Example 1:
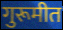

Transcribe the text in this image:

गुरूमीत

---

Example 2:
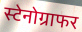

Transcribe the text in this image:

स्टेनोग्राफर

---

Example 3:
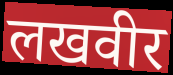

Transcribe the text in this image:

लखवीर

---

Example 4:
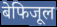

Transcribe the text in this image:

बेफिजूल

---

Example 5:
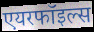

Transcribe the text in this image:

एयरफॉइल्स